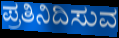
ಪ್ರತಿನಿದಿಸುವ